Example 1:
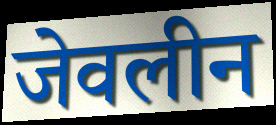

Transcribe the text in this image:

जेवलीन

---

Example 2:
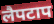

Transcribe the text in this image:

लैपटाप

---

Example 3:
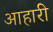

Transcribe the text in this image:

आहारी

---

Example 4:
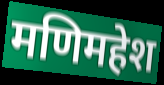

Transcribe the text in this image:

मणिमहेश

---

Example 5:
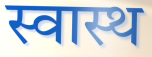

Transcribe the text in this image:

स्‍वास्‍थ